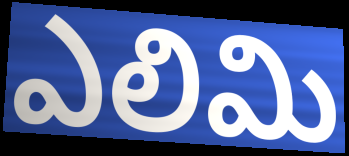
ఎలిమి